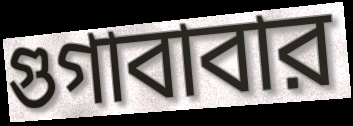
গুগাবাবার